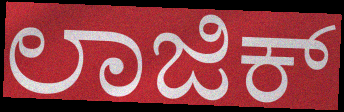
ಲಾಜಿಕ್